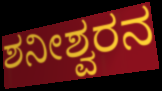
ಶನೀಶ್ವರನ